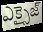
ఎక్సైజ్